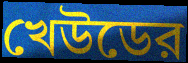
খেউডের